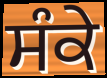
ਸੰਕੇ